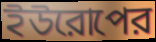
ইউরোপের